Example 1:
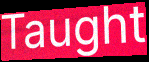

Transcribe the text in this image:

Taught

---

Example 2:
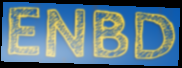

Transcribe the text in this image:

ENBD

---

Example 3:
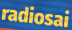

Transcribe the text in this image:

radiosai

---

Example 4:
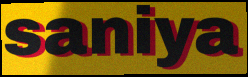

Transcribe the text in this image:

saniya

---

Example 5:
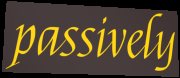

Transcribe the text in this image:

passively